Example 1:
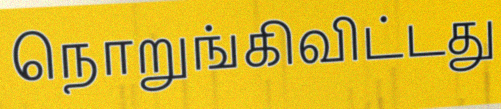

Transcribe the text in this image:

நொறுங்கிவிட்டது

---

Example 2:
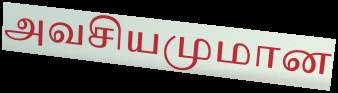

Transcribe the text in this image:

அவசியமுமான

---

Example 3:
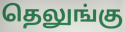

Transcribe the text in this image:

தெலுங்கு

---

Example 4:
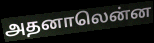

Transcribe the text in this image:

அதனாலென்ன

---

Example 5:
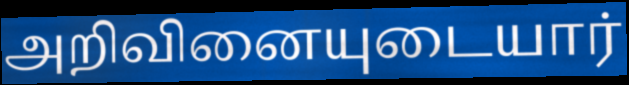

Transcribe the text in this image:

அறிவினையுடையார்